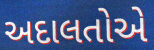
અદાલતોએ